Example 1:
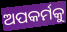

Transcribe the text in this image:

ଅପକର୍ମକୁ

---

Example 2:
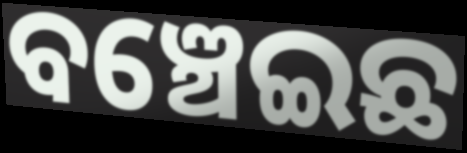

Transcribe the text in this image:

ବଞ୍ଚେଇଛ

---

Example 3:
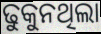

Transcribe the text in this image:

ଢୁକୁନଥିଲା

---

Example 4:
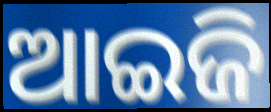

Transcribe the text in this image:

ଆଇଜି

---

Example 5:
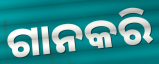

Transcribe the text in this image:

ଗାନକରି